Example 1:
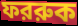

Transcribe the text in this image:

ফররুক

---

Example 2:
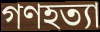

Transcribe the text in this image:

গণহত্যা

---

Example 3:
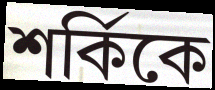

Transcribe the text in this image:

শর্কিকে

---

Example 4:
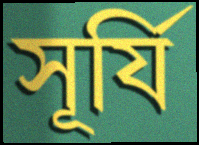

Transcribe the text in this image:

সূর্যি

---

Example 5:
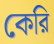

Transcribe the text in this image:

কেরি